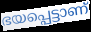
ഭയപ്പെട്ടാണ്